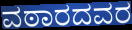
ವಠಾರದವರ